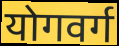
योगवर्ग